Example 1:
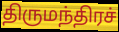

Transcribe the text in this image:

திருமந்திரச்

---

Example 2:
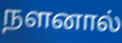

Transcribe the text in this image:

நளனால்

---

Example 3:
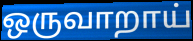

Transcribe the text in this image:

ஒருவாறாய்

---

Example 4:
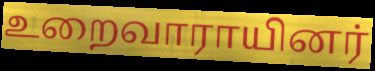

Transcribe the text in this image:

உறைவாராயினர்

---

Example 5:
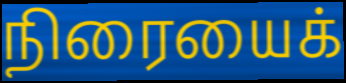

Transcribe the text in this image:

நிரையைக்